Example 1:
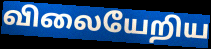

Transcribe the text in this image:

விலையேறிய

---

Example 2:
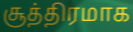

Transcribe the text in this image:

சூத்திரமாக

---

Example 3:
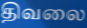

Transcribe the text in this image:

திவலை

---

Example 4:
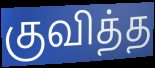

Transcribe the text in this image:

குவித்த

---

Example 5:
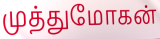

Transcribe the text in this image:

முத்துமோகன்